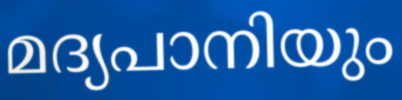
മദ്യപാനിയും